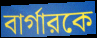
বার্গারকে